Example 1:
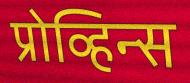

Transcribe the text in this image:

प्रोव्हिन्स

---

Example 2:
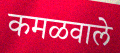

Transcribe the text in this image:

कमळवाले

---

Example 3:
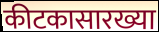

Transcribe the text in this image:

कीटकासारख्या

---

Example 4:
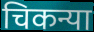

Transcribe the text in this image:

चिकन्या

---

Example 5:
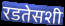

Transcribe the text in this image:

रडतेसशी